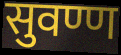
सुवण्ण